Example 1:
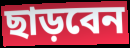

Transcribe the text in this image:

ছাড়বেন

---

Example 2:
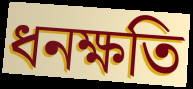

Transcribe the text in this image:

ধনক্ষতি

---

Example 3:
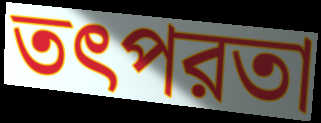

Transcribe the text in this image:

তৎপরতা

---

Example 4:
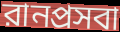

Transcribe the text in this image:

রানপ্রসবা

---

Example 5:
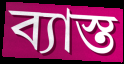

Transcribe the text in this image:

ব্যাস্ত